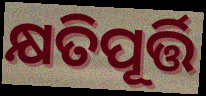
କ୍ଷତିପୂର୍ତ୍ତି